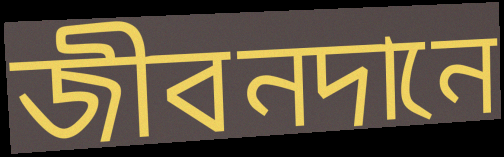
জীবনদানে